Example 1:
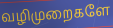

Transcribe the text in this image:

வழிமுறைகளே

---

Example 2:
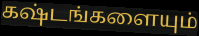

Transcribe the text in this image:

கஷ்டங்களையும்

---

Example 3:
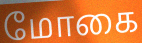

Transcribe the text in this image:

மோகை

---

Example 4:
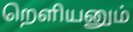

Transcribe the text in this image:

றெளியனும்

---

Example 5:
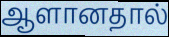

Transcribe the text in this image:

ஆளானதால்